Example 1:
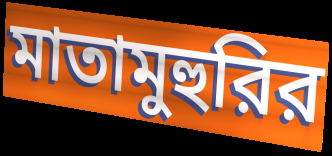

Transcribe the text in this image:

মাতামুহুরির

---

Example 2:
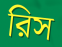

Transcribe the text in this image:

রিস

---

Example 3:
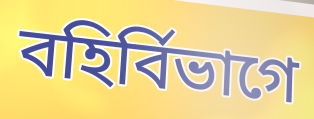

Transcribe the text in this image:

বহির্বিভাগে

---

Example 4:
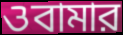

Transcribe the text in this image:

ওবামার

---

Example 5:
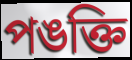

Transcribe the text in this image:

পঙক্তি